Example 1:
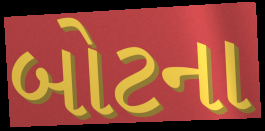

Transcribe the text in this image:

બોટના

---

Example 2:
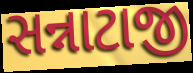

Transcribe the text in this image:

સન્નાટાજી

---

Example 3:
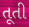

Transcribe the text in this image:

તૂતી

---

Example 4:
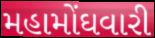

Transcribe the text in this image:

મહામોંઘવારી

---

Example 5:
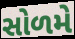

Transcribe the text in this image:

સોળમે